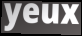
yeux